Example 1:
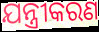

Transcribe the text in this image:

ଯନ୍ତ୍ରୀକରଣ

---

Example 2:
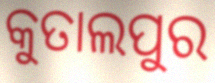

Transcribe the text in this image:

କୁତାଲପୁର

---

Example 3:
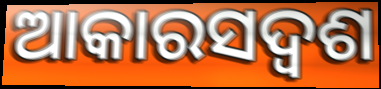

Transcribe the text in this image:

ଆକାରସଦ୍ୱଶ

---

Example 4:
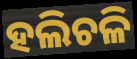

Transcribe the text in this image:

ହଲିଚଳି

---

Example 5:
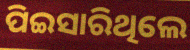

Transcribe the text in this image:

ପିଇସାରିଥିଲେ